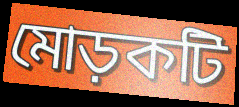
মোড়কটি